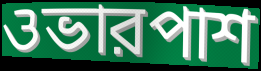
ওভারপাশ